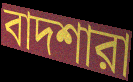
বাদশারা